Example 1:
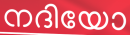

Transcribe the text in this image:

നദിയോ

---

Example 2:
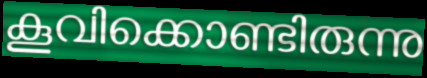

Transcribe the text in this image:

കൂവിക്കൊണ്ടിരുന്നു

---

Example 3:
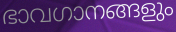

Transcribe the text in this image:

ഭാവഗാനങ്ങളും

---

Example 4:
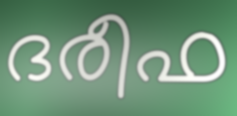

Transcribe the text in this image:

ദരീഫ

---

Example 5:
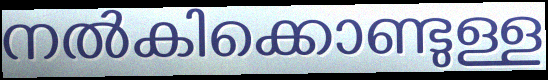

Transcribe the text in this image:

നൽകിക്കൊണ്ടുള്ള